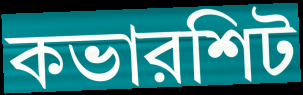
কভারশিট